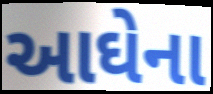
આઘેના